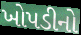
ખોપડીનો